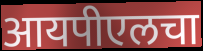
आयपीएलचा